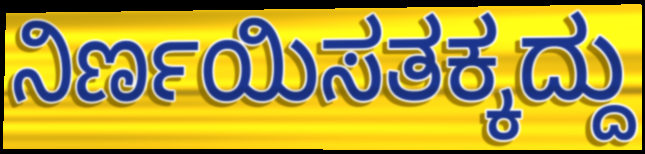
ನಿರ್ಣಯಿಸತಕ್ಕದ್ದು